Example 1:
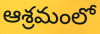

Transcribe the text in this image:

ఆశ్రమంలో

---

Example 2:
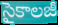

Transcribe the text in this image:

సైకాలజీ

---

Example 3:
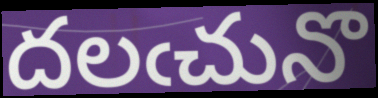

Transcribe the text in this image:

దలఁచునొ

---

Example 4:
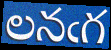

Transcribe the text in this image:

లనఁగ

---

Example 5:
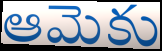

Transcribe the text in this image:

ఆమెకు